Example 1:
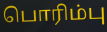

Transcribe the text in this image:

பொரிம்பு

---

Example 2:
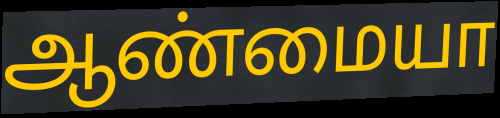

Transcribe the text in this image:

ஆண்மையா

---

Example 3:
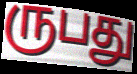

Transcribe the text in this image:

ருபது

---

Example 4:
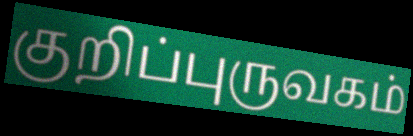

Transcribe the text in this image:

குறிப்புருவகம்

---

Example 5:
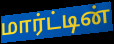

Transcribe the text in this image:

மார்ட்டின்